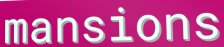
mansions